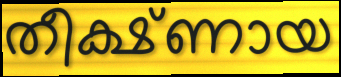
തീക്ഷ്ണായ